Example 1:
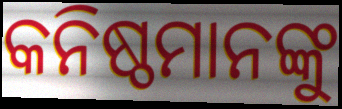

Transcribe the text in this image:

କନିଷ୍ଠମାନଙ୍କୁ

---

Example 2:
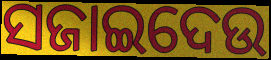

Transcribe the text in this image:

ସଜାଇଦେଉ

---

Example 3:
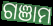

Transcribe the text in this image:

ଗଞାମ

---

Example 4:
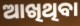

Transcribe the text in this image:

ଆଖିଥିବା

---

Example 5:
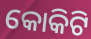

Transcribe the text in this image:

କୋକିଟି